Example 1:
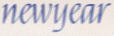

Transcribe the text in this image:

newyear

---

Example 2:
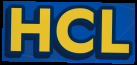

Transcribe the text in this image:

HCL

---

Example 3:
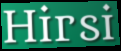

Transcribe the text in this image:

Hirsi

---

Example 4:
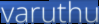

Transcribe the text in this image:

varuthu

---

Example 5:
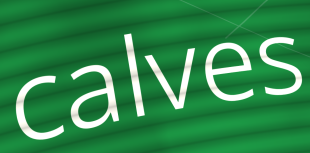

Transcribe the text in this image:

calves